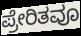
ಪ್ರೇರಿತವೂ